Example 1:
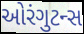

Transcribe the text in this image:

ઓરંગુટન્સ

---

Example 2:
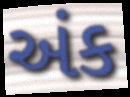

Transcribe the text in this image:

અંક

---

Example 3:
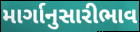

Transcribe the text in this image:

માર્ગાનુસારીભાવ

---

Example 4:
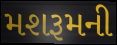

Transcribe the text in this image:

મશરૂમની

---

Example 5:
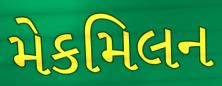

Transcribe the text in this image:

મેકમિલન